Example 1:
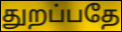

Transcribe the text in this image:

துறப்பதே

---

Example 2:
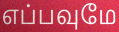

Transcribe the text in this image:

எப்பவுமே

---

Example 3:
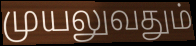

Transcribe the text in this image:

முயலுவதும்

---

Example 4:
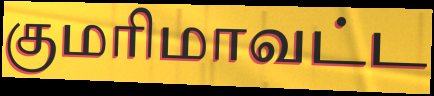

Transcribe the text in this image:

குமரிமாவட்ட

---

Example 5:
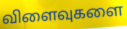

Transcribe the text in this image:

விளைவுகளை